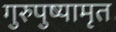
गुरुपुष्यामृत